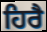
ਹਿਰੈ